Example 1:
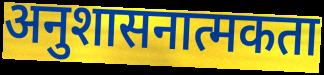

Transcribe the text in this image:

अनुशासनात्मकता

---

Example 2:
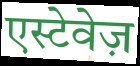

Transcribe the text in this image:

एस्टेवेज़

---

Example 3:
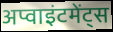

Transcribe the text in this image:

अप्वाइंटमेंट्स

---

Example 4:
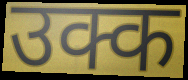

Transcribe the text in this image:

उक्क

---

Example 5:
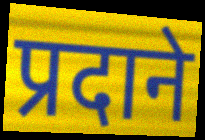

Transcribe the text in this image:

प्रदाने